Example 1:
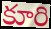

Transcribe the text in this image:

కూరి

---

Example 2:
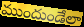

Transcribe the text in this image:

ముందుండేలా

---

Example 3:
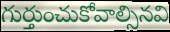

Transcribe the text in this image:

గుర్తుంచుకోవాల్సినవి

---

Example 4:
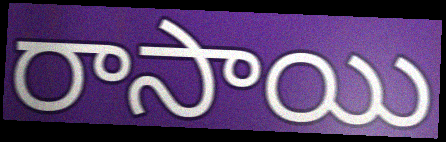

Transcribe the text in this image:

రాసాయి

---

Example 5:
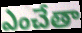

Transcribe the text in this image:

ఎంచేతా